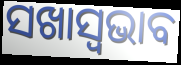
ସଖାସ୍ୱଭାବ